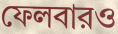
ফেলবারও